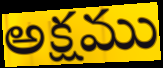
అక్షము